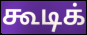
கூடிக்